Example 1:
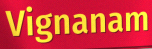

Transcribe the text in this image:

Vignanam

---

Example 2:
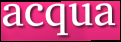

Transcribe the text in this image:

acqua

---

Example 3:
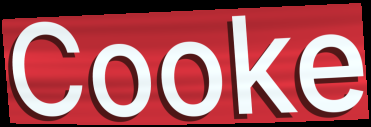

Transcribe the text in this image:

Cooke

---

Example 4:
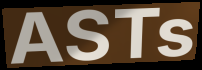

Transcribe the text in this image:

ASTs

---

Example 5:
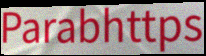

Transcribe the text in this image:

Parabhttps